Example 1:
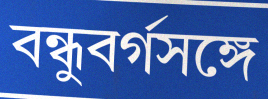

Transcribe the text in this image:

বন্ধুবর্গসঙ্গে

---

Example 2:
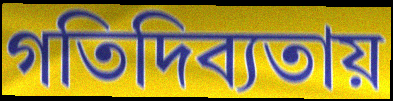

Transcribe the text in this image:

গতিদিব্যতায়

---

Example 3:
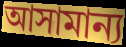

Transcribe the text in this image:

আসামান্য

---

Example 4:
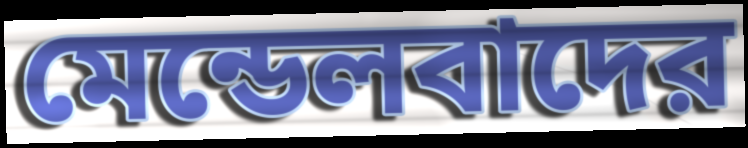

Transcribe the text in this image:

মেন্ডেলবাদের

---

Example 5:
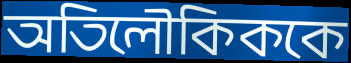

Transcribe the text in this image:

অতিলৌকিককে